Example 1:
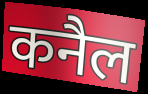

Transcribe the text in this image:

कनैल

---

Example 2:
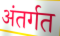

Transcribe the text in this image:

अंतर्गत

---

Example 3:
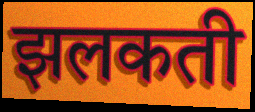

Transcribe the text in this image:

झलकती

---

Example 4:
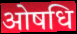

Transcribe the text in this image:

ओषधि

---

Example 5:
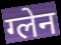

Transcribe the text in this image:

ग्लेन